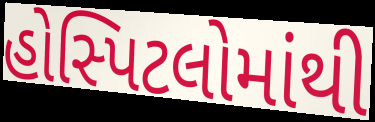
હોસ્પિટલોમાંથી